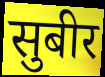
सुबीर